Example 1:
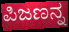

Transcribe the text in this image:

ಪಿಜಣನ್ನ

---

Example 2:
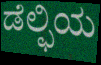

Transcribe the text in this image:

ಡೆಲ್ಫಿಯ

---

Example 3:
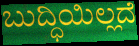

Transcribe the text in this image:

ಬುದ್ಧಿಯಿಲ್ಲದೆ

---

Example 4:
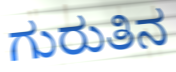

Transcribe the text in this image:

ಗುರುತಿನ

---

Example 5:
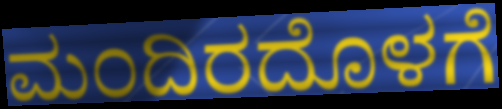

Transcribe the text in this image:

ಮಂದಿರದೊಳಗೆ